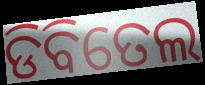
ଡିବିତେଲ